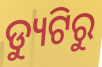
ଡ୍ୟୁଟିରୁ